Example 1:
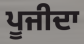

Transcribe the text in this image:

ਪੂਜੀਦਾ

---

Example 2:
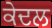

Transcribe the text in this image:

ਕੇਦਲ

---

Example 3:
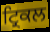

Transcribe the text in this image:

ਟ੍ਰਿਕਲ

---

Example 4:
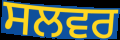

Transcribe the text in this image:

ਸਲਵਰ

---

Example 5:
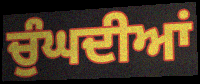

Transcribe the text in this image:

ਚੁੰਘਦੀਆਂ